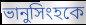
ভানুসিংহকে